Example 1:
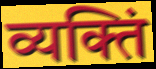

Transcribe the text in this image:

व्यक्तिं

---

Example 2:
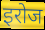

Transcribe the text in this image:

इरोज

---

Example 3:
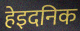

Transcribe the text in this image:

हेइदनिक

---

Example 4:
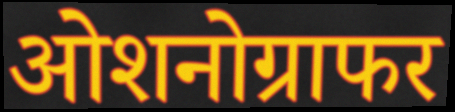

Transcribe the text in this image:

ओशनोग्राफर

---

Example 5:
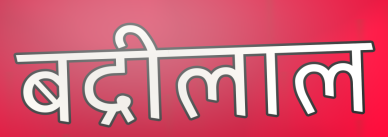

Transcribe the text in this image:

बद्रीलाल